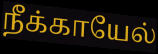
நீக்காயேல்